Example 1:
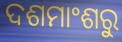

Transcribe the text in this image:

ଦଶମାଂଶରୁ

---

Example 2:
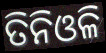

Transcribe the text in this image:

ତିନିଓଳି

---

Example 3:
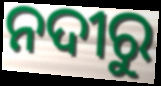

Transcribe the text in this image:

ନଦୀରୁ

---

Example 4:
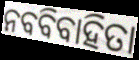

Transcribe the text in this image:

ନବବିବାହିତା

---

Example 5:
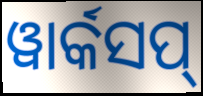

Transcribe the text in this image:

ୱାର୍କସପ୍